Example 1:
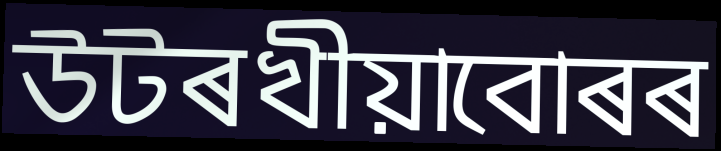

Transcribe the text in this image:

উটৰখীয়াবোৰৰ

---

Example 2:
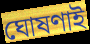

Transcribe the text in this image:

ঘোষণাই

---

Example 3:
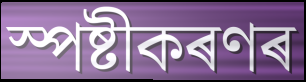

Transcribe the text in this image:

স্পষ্টীকৰণৰ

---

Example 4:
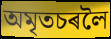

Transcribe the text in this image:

অমৃতচৰলৈ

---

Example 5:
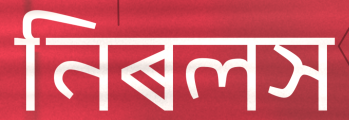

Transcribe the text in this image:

নিৰলস